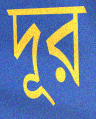
দূর